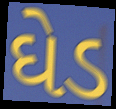
ઘેડ